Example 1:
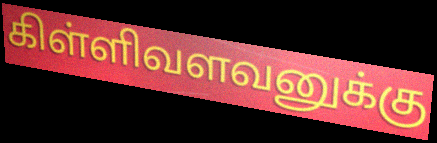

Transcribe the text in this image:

கிள்ளிவளவனுக்கு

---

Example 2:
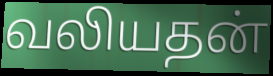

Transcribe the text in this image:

வலியதன்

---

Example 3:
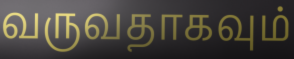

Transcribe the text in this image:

வருவதாகவும்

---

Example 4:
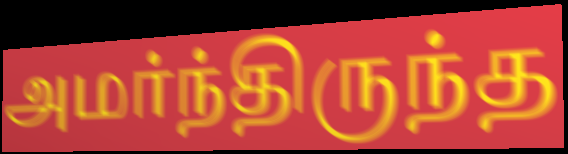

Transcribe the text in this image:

அமர்ந்திருந்த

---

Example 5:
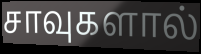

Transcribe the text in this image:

சாவுகளால்